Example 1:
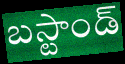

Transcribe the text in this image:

బస్టాండ్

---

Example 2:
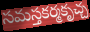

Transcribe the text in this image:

సమస్తకర్మకృచ్చ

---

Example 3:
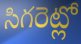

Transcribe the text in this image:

సిగరెట్లో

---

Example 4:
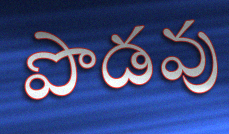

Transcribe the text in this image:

పొడవు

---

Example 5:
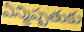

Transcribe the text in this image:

ఏన్మిష్పతుకు